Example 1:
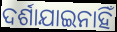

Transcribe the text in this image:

ଦର୍ଶାଯାଇନାହିଁ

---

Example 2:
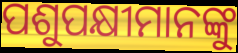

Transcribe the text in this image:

ପଶୁପକ୍ଷୀମାନଙ୍କୁ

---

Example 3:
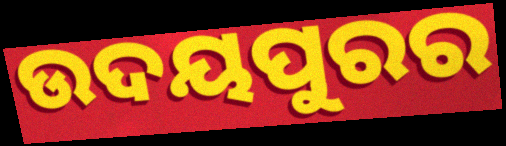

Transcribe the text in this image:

ଉଦୟପୁରର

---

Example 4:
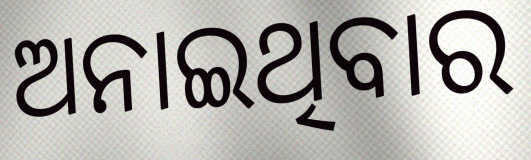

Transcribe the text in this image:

ଅନାଇଥିବାର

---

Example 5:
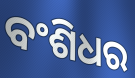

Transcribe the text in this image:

ବଂଶିଧର